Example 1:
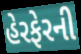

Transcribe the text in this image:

હેરફેરની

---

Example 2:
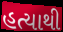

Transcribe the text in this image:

હત્યાથી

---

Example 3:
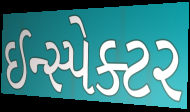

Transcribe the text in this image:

ઈન્સ્પેક્ટર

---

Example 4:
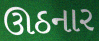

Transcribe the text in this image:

ઊઠનાર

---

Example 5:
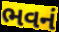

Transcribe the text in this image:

ભવનં